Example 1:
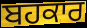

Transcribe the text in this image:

ਬਹਕਾਰ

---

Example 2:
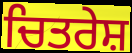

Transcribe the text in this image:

ਚਿਤਰੇਸ਼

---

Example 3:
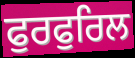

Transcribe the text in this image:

ਫੁਰਫੁਰਿਲ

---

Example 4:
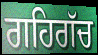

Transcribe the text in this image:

ਗਹਿਗੱਚ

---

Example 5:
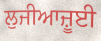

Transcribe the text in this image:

ਲੁਜੀਆਜ਼ੂਈ